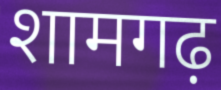
शामगढ़